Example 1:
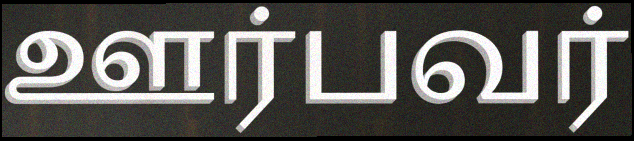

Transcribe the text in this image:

ஊர்பவர்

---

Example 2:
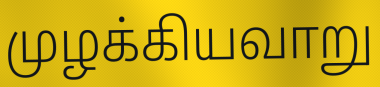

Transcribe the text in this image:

முழக்கியவாறு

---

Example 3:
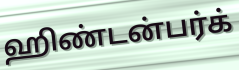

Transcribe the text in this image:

ஹிண்டன்பர்க்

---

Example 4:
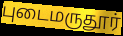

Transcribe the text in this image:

புடைமருதூர்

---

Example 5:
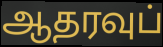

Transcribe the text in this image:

ஆதரவுப்